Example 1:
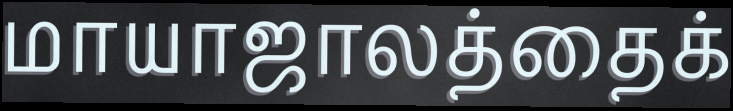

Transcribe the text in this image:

மாயாஜாலத்தைக்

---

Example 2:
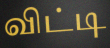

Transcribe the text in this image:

விட்டி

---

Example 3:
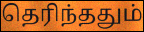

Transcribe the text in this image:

தெரிந்ததும்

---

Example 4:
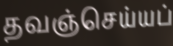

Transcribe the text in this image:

தவஞ்செய்யப்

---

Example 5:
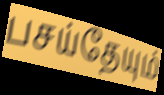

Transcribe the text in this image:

பசய்தேயும்